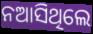
ନଆସିଥିଲେ